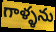
గాళ్ళను